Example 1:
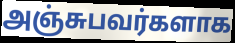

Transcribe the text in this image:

அஞ்சுபவர்களாக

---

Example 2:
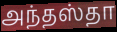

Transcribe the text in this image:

அந்தஸ்தா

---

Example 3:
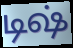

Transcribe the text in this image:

டிஷ்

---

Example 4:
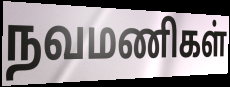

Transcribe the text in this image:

நவமணிகள்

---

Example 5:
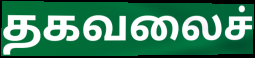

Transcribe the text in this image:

தகவலைச்